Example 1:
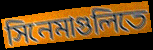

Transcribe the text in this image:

সিনেমাগুলিতে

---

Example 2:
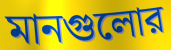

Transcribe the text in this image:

মানগুলোর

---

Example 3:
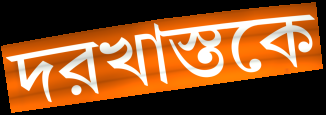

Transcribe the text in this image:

দরখাস্তকে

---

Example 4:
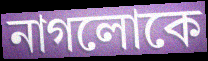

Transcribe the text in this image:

নাগলোকে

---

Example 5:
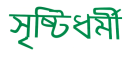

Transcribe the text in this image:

সৃষ্টিধর্মী